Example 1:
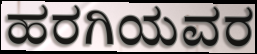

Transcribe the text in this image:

ಹರಗಿಯವರ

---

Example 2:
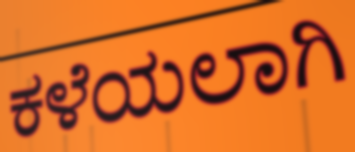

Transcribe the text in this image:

ಕಳೆಯಲಾಗಿ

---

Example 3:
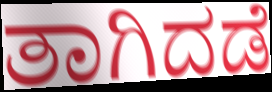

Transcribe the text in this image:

ತಾಗಿದಡೆ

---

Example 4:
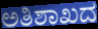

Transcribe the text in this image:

ಅತಿಶಾಖದ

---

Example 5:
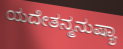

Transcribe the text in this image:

ಯದೇತನ್ಮನುಷ್ಯಾ